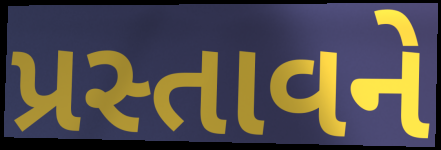
પ્રસ્તાવને